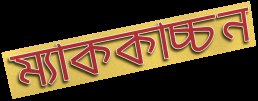
ম্যাককাচ্চন